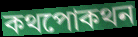
কথপোকথন